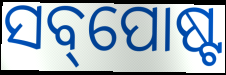
ସବ୍‌ପୋଷ୍ଟ